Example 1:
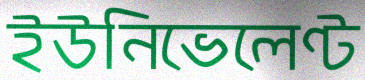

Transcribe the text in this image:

ইউনিভেলেণ্ট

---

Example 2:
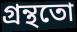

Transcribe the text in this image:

গ্ৰন্থতো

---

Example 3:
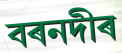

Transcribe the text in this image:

বৰনদীৰ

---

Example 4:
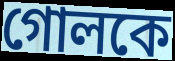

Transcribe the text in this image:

গোলকে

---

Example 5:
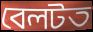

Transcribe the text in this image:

বেলটত